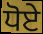
ਧੋਏ